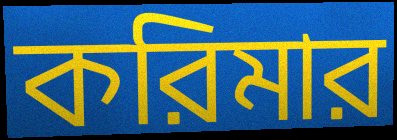
করিমার